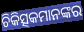
ଚିକିତ୍ସକମାନଙ୍କର